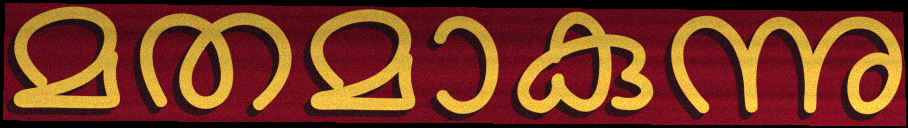
മതമാകുന്നു